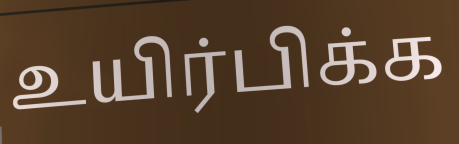
உயிர்பிக்க